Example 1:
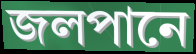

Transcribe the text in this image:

জলপানে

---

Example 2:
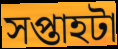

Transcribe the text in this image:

সপ্তাহটা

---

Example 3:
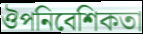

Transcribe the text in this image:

ঔপনিবেশিকতা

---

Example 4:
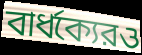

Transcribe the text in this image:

বার্ধক্যেরও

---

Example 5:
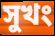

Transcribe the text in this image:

সুখং